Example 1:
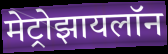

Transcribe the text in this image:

मेट्रोझायलॉन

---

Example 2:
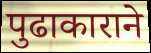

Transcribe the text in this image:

पुढाकाराने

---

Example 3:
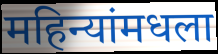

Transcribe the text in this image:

महिन्यांमधला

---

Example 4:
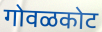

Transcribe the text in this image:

गोवळकोट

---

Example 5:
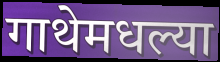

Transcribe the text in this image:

गाथेमधल्या